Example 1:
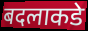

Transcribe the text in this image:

बदलाकडे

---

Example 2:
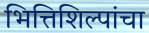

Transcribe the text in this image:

भित्तिशिल्पांचा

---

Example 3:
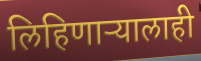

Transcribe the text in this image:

लिहिणाऱ्यालाही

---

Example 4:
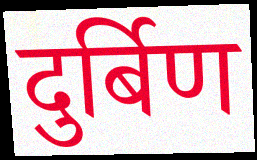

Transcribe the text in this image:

दुर्बिण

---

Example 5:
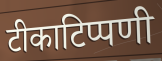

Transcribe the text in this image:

टीकाटिप्पणी